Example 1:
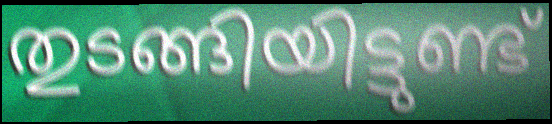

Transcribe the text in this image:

തുടങ്ങിയിട്ടുണ്ട്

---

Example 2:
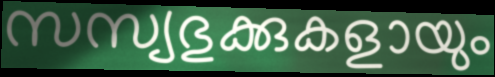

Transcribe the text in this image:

സസ്യഭുക്കുകളായും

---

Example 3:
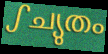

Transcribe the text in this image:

ഽച്യുതം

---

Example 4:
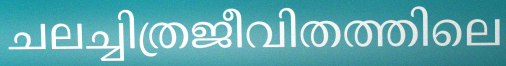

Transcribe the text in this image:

ചലച്ചിത്രജീവിതത്തിലെ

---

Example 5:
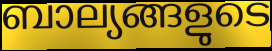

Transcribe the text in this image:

ബാല്യങ്ങളുടെ